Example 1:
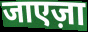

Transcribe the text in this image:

जाएज़ा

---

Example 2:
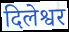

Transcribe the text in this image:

दिलेश्वर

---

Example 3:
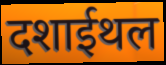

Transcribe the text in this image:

दशाईथल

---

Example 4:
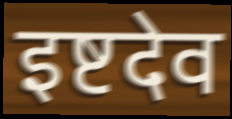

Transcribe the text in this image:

इष्टदेव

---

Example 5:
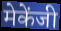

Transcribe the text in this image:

मेकेंजी